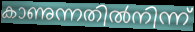
കാണുന്നതിൽനിന്ന്